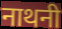
नाथनी